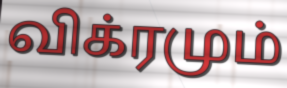
விக்ரமும்